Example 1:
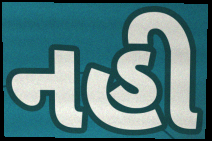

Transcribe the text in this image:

નહી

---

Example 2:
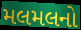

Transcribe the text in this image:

મલમલનો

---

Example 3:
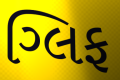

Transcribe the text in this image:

ગ્લિફ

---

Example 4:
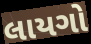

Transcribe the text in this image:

લાયગો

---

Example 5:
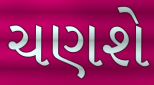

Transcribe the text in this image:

ચણશે